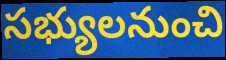
సభ్యులనుంచి